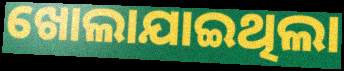
ଖୋଲାଯାଇଥିଲା